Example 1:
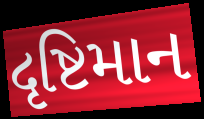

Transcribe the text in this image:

દૃષ્ટિમાન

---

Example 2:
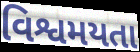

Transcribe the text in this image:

વિશ્વમયતા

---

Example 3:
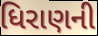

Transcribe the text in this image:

ધિરાણની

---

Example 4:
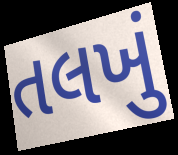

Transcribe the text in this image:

તલખું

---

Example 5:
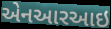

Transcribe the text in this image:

એનઆરઆઇ